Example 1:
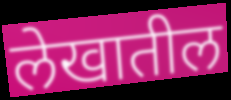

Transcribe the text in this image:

लेखातील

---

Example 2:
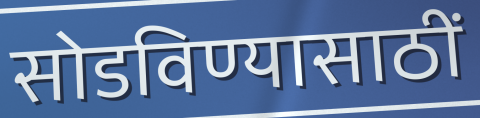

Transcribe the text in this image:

सोडविण्यासाठीं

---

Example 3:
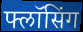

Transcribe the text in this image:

फ्लॉसिंग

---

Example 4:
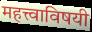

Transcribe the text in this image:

महत्त्वाविषयी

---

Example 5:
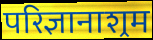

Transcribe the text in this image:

परिज्ञानाश्रम